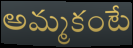
అమ్మకంటే